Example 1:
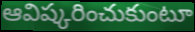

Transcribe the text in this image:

ఆవిష్కరించుకుంటూ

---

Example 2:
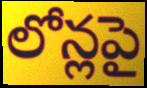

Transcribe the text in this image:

లోన్లపై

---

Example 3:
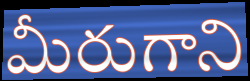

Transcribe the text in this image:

మీరుగాని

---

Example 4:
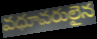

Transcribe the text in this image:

వధూవరులైన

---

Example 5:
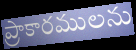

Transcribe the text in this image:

ప్రాకారములను